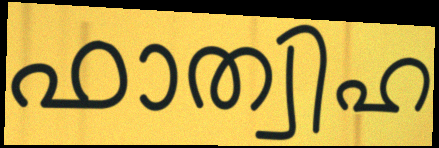
ഫാത്വിഹ